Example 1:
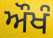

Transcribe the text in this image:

ਔਖੰ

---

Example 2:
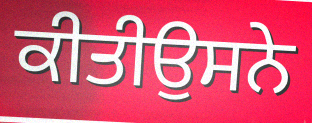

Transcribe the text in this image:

ਕੀਤੀਉਸਨੇ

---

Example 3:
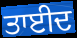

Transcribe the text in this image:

ਤਾਈਦ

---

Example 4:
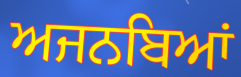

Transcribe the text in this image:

ਅਜਨਬਿਆਂ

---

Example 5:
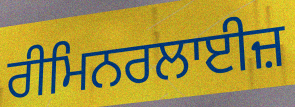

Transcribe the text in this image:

ਰੀਮਿਨਰਲਾਈਜ਼